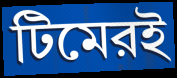
টিমেরই